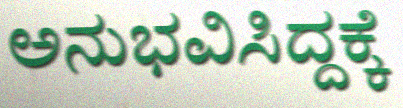
ಅನುಭವಿಸಿದ್ದಕ್ಕೆ